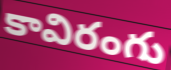
కావిరంగు